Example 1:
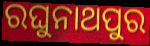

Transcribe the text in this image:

ରଘୁନାଥପୁର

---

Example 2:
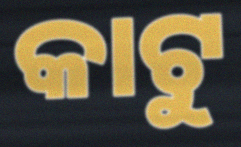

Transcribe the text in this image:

କାଟୁ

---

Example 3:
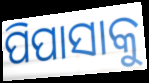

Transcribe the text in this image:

ପିପାସାକୁ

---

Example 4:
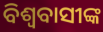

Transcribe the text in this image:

ବିଶ୍ଵବାସୀଙ୍କ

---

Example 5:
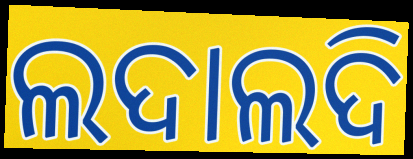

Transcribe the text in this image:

ଲଦାଲଦି